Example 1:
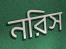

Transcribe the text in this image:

নরিস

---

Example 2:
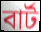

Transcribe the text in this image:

বার্ট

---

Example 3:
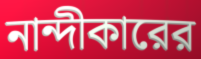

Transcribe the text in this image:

নান্দীকারের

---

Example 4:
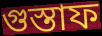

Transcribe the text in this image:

গুস্তাফ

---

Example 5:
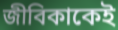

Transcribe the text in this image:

জীবিকাকেই